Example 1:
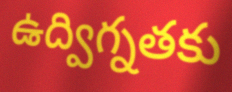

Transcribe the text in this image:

ఉద్విగ్నతకు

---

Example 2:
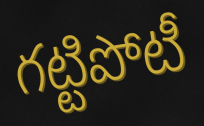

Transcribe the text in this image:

గట్టిపోటీ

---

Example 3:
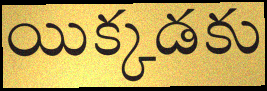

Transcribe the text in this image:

యిక్కడకు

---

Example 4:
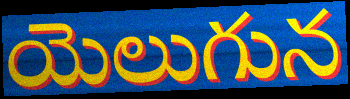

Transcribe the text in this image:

యెలుగున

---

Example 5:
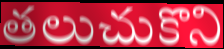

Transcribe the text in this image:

తలుచుకొని